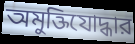
অমুক্তিযোদ্ধার